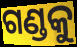
ଗଣ୍ଡକୁ